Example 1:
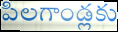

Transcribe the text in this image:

పిలగాండ్లకు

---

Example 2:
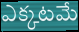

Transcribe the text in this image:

ఎక్కటమే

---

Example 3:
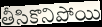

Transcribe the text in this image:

తీసికొనిపోయి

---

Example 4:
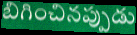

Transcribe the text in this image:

బిగించినప్పుడు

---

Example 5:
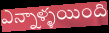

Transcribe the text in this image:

ఎన్నాళ్ళయింది